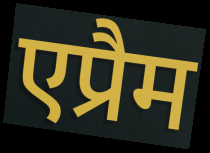
एप्रैम